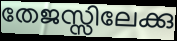
തേജസ്സിലേക്കു